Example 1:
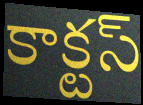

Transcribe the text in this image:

కాక్టస్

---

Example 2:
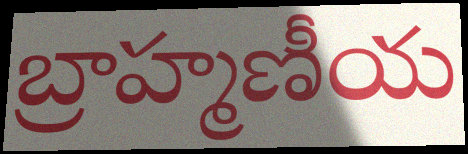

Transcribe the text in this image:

బ్రాహ్మణీయ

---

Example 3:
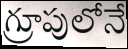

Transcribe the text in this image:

గ్రూపులోనే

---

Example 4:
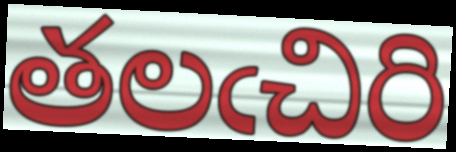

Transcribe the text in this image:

తలఁచిరి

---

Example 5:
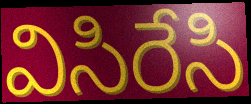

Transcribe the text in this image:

విసిరేసి